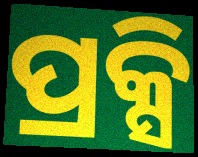
ପ୍ରକ୍ସି